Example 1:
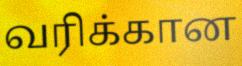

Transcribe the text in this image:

வரிக்கான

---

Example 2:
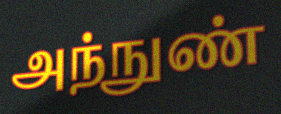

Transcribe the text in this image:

அந்நுண்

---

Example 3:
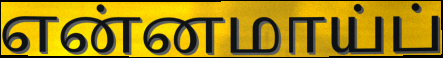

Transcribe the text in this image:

என்னமாய்ப்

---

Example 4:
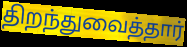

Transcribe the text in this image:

திறந்துவைத்தார்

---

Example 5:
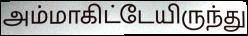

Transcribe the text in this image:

அம்மாகிட்டேயிருந்து